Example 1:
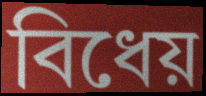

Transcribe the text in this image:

বিধেয়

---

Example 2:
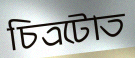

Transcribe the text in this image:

চিত্ৰটোত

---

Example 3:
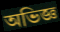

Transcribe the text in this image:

অভিজ্ঞ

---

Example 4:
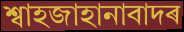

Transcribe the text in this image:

শ্বাহজাহানাবাদৰ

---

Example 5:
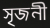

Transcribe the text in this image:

সৃজনী